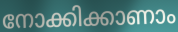
നോക്കിക്കാണാം